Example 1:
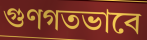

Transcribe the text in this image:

গুণগতভাবে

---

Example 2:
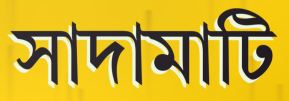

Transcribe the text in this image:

সাদামাটি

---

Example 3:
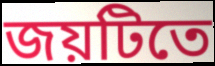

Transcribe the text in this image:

জয়টিতে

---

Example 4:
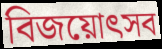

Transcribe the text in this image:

বিজয়োৎসব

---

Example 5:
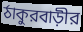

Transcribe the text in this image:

ঠাকুরবাড়ীর